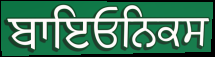
ਬਾਇਓਨਿਕਸ